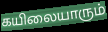
கயிலையாரும்